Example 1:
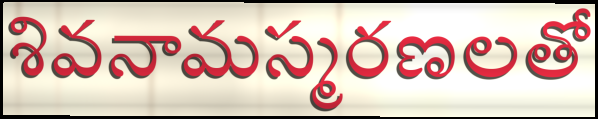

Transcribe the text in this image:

శివనామస్మరణలతో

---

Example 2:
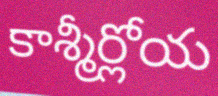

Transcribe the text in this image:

కాశ్మీర్లోయ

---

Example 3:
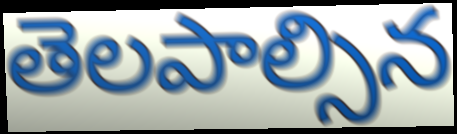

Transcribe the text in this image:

తెలపాల్సిన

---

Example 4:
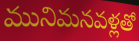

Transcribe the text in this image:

మునిమనవళ్లతో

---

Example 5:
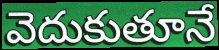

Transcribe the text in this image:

వెదుకుతూనే